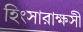
হিংসারাক্ষসী